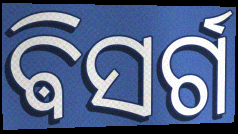
ଵିସର୍ଗ